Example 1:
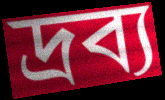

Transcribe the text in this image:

দ্ৰব্য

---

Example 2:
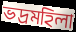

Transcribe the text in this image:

ভদ্ৰমহিলা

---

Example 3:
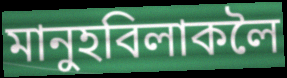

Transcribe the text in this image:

মানুহবিলাকলৈ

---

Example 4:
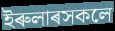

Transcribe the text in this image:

ইৰুলাৰসকলে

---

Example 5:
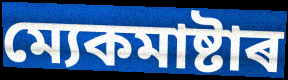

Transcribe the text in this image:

ম্যেকমাষ্টাৰ